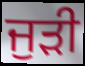
ਜੁੜੀ